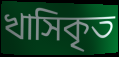
খাসিকৃত